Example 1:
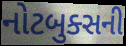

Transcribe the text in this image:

નોટબુક્સની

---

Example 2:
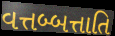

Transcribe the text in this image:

વત્તબ્બત્તાતિ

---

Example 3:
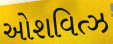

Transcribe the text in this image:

ઓશવિત્ઝ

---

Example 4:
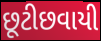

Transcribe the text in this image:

છૂટીછવાયી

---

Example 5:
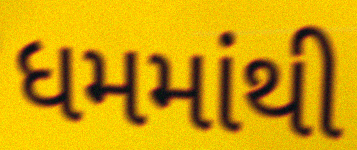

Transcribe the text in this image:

ધમમાંથી